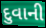
દુવાની